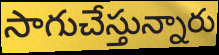
సాగుచేస్తున్నారు